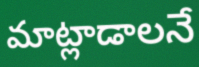
మాట్లాడాలనే